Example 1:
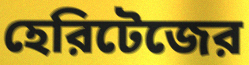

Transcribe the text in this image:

হেরিটেজের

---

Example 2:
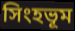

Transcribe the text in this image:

সিংহভূম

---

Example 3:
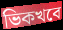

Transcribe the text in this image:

ভিকখবে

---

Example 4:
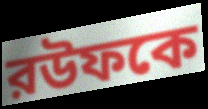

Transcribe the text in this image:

রউফকে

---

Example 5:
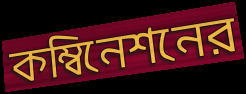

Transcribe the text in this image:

কম্বিনেশনের